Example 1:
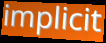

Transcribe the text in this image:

implicit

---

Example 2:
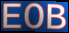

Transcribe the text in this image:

EOB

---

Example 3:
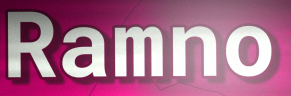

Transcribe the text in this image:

Ramno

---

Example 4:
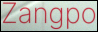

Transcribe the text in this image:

Zangpo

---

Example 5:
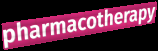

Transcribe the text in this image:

pharmacotherapy